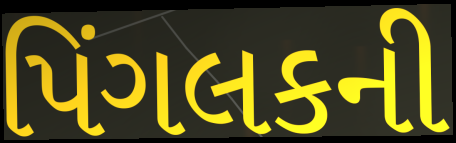
પિંગલકની